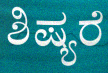
ಶಿಷ್ಯರೆ